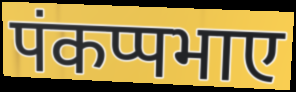
पंकप्पभाए